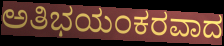
ಅತಿಭಯಂಕರವಾದ